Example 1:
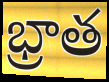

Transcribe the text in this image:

భ్రాత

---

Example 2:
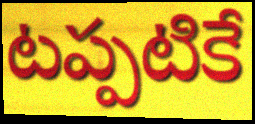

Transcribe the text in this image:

టప్పటికే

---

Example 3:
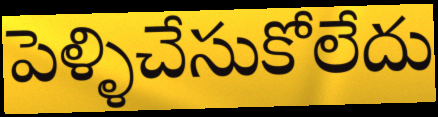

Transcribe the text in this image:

పెళ్ళిచేసుకోలేదు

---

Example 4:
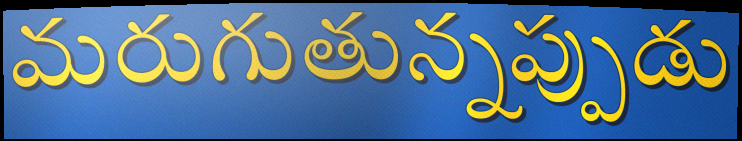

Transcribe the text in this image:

మరుగుతున్నప్పుడు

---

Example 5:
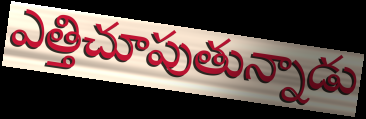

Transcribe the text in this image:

ఎత్తిచూపుతున్నాడు